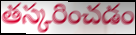
తస్కరించడం